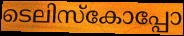
ടെലിസ്കോപ്പോ